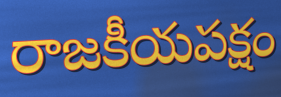
రాజకీయపక్షం